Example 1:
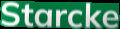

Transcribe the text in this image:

Starcke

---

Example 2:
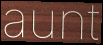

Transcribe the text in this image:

aunt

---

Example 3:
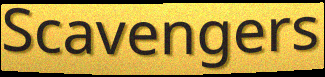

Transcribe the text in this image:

Scavengers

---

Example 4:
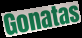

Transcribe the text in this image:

Gonatas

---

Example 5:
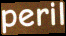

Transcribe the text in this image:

peril